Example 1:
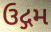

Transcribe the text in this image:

ઉદ્ગમ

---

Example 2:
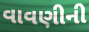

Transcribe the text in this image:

વાવણીની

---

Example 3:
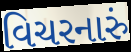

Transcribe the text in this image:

વિચરનારું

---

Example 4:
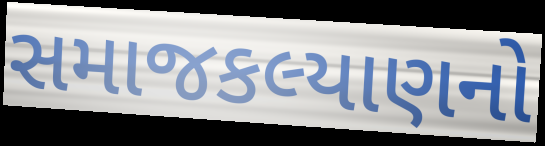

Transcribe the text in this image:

સમાજકલ્યાણનો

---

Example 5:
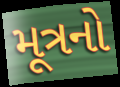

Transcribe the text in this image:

મૂત્રનો